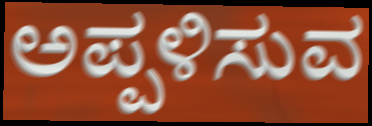
ಅಪ್ಪಳಿಸುವ